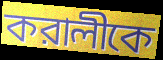
করালীকে